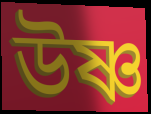
উষ্ণ